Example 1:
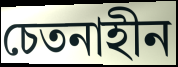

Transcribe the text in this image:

চেতনাহীন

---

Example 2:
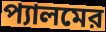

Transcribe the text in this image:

প্যালমের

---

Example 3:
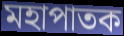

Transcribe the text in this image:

মহাপাতক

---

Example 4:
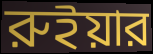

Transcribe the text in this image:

রুইয়ার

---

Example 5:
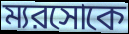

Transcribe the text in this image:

ম্যরসোকে